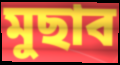
মুছাব